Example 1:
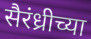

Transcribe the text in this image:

सैरंध्रीच्या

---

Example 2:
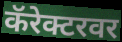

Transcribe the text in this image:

कॅरेक्टरवर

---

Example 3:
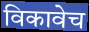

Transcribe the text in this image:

विकावेच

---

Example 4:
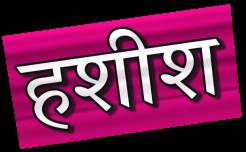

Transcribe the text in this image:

हशीश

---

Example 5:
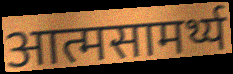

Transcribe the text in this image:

आत्मसामर्थ्य